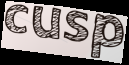
cusp